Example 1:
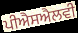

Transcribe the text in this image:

ਪੀਐਸਐਲਵੀ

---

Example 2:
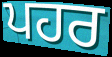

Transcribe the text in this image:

ਪਹਰ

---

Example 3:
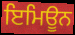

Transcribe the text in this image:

ਇਮਿਊਨ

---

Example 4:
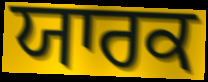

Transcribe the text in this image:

ਯਾਰਕ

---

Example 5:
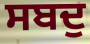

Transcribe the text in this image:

ਸਬਦੁ